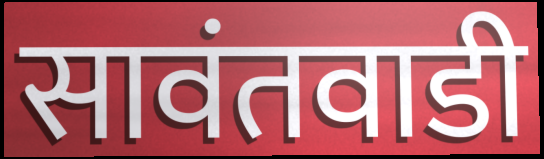
सावंतवाडी